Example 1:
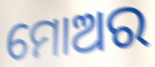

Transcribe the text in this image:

ମୋଅର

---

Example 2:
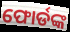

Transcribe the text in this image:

ଫୋର୍ଡଙ୍କ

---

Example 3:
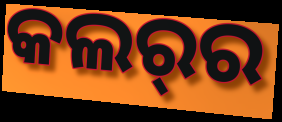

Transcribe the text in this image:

କଲର୍‌ର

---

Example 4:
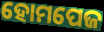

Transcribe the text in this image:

ହୋମପେଜ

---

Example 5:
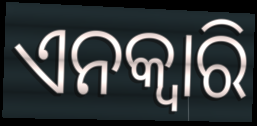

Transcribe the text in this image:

ଏନକ୍ଵାରି